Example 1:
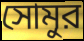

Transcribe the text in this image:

সোমুর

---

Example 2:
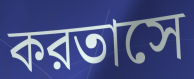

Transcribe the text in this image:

করতাসে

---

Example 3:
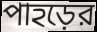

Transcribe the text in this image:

পাহড়ের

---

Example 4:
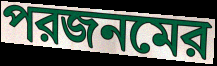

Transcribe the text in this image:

পরজনমের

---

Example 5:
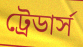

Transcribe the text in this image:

ট্রেডার্স